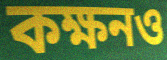
কক্ষনও